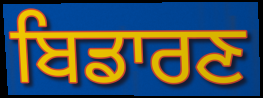
ਬਿਡਾਰਣ